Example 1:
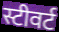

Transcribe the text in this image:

स्टीवर्ट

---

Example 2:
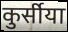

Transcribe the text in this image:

कुर्सीया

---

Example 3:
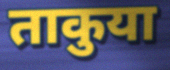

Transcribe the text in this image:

ताकुया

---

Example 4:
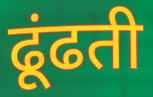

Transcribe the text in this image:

ढूंढती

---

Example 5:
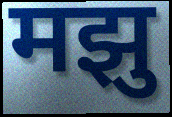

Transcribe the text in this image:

मझु